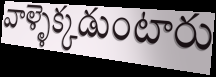
వాళ్ళెక్కడుంటారు